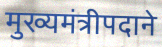
मुख्यमंत्रीपदाने